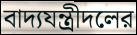
বাদ্যযন্ত্রীদলের